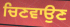
ਚਿਣਵਾਉਣ